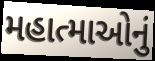
મહાત્માઓનું